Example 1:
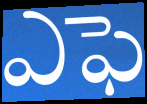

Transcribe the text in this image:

ఎఫె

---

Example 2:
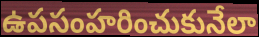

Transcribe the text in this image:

ఉపసంహరించుకునేలా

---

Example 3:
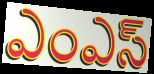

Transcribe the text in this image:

ఎంఎస్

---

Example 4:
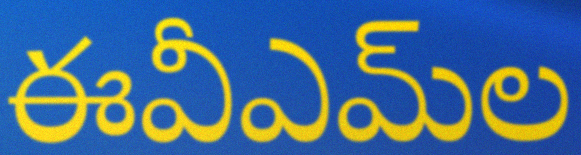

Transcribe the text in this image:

ఈవీఎమ్‌ల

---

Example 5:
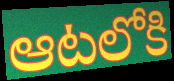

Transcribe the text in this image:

ఆటలోకి